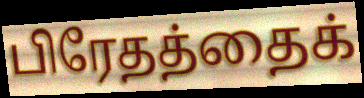
பிரேதத்தைக்